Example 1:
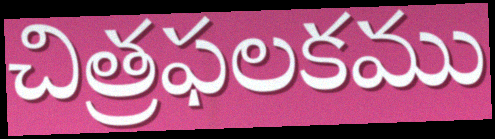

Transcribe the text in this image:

చిత్రఫలకము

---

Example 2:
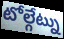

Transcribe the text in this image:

టోల్గేట్ను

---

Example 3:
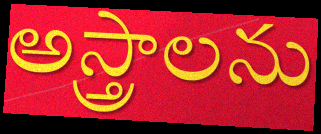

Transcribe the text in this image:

అస్త్రాలను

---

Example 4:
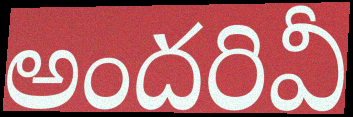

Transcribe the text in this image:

అందరివీ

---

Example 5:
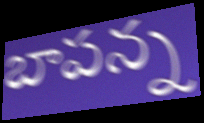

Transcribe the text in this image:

బాపన్న